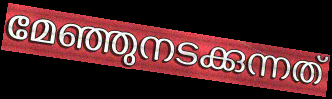
മേഞ്ഞുനടക്കുന്നത്